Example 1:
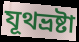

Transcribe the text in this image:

যূথভ্রষ্টা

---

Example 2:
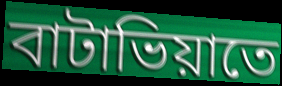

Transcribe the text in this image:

বাটাভিয়াতে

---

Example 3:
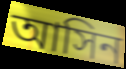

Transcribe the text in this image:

আসিন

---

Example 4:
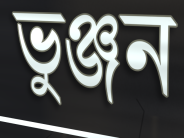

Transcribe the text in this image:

ভুঞ্জন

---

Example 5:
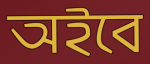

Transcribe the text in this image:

অইবে